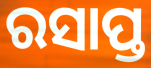
ରସାପ୍ତ